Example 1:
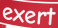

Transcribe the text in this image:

exert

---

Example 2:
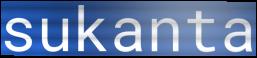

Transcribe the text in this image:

sukanta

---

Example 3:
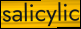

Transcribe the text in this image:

salicylic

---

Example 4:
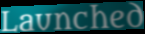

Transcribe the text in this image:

Launched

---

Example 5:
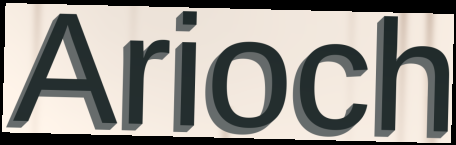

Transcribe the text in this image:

Arioch